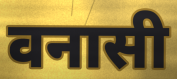
वनासी